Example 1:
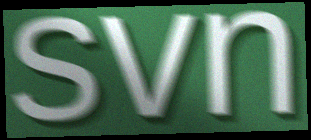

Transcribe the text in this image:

svn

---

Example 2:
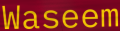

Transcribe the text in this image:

Waseem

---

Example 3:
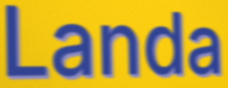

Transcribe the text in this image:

Landa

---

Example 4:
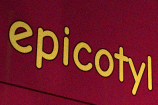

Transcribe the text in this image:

epicotyl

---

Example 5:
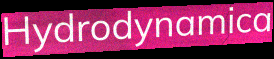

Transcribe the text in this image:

Hydrodynamica